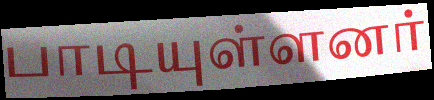
பாடியுள்ளனர்